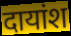
दायांश